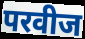
परवीज